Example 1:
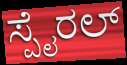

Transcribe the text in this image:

ಸ್ಪೈರಲ್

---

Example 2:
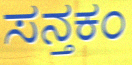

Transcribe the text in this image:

ಸನ್ತಕಂ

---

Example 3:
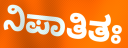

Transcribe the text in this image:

ನಿಪಾತಿತಃ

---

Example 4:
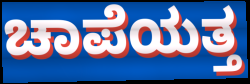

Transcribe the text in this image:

ಚಾಪೆಯತ್ತ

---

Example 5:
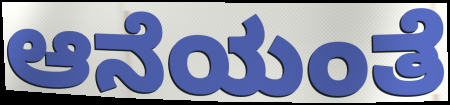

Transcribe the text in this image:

ಆನೆಯಂತೆ